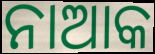
ନାଆକ